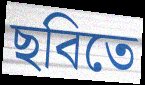
ছবিতে